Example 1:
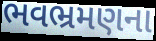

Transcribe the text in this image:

ભવભ્રમણના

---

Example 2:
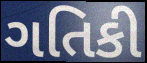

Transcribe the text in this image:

ગતિકી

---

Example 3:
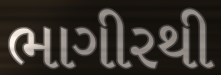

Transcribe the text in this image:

ભાગીરથી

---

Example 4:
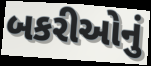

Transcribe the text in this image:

બકરીઓનું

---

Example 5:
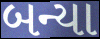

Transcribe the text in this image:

બન્યા